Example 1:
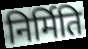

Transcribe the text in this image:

निर्मिति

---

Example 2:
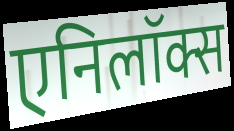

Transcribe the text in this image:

एनिलॉक्स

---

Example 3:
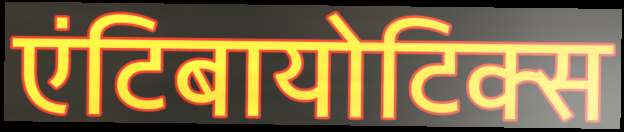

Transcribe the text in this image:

एंटिबायोटिक्स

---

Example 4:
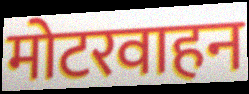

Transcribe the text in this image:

मोटरवाहन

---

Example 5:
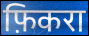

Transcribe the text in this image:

फ़िकरा